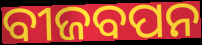
ବୀଜବପନ